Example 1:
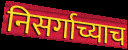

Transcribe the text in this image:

निसर्गाच्याच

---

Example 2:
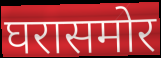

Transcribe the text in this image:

घरासमोर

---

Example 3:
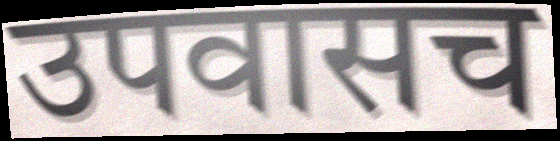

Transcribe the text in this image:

उपवासच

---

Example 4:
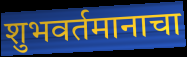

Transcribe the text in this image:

शुभवर्तमानाचा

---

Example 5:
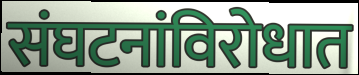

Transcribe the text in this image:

संघटनांविरोधात